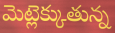
మెట్లెక్కుతున్న